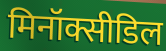
मिनॉक्सीडिल